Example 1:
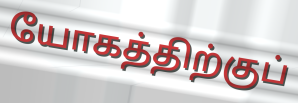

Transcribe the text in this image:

யோகத்திற்குப்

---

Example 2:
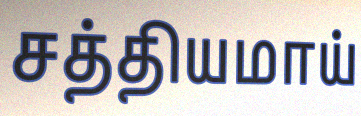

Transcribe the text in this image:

சத்தியமாய்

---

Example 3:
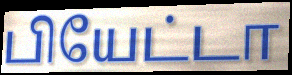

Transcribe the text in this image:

பியேட்டா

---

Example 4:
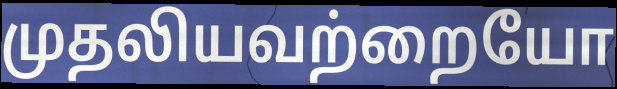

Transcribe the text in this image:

முதலியவற்றையோ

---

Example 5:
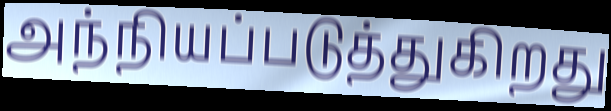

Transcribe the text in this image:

அந்நியப்படுத்துகிறது